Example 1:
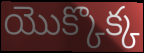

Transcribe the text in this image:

యొక్కొక్క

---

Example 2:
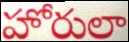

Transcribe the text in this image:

హోరులా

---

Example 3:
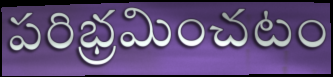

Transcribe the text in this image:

పరిభ్రమించటం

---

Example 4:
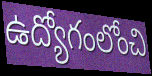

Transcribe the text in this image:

ఉద్యోగంలోంచి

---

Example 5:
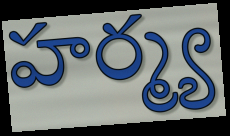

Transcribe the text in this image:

హర్మ్య